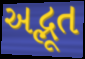
અદ્ભૂત